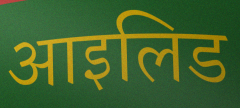
आइलिड